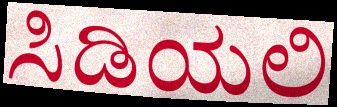
ಸಿಡಿಯಲಿ